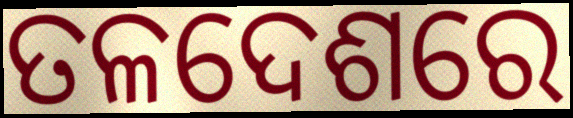
ତଳଦେଶରେ